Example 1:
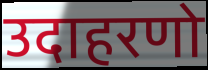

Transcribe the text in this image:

उदाहरणो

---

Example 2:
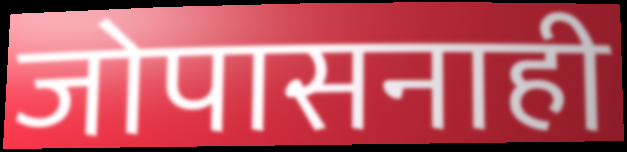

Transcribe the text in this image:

जोपासनाही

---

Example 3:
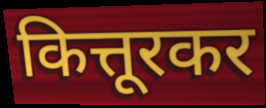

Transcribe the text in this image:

कित्तूरकर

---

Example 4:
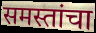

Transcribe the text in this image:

समस्तांचा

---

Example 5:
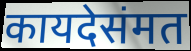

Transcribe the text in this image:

कायदेसंमत